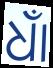
ଧାଁ